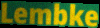
Lembke